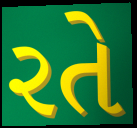
રતે